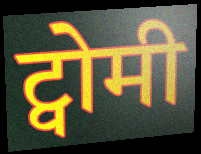
ट्वोमी